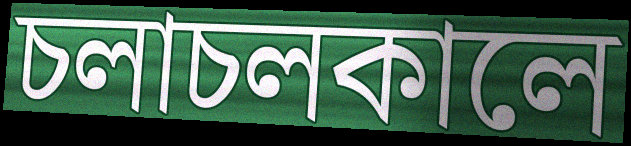
চলাচলকালে